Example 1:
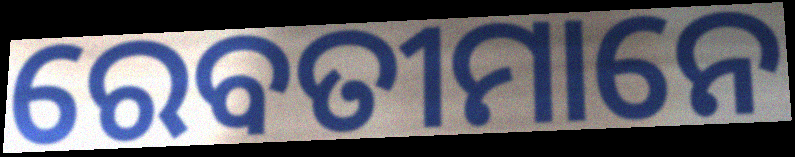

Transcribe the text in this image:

ରେବତୀମାନେ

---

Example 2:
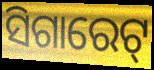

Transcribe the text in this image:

ସିଗାରେଟ୍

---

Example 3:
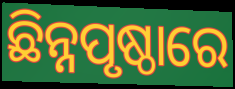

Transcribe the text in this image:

ଛିନ୍ନପୃଷ୍ଠାରେ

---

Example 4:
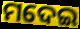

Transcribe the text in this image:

ମଦେଇ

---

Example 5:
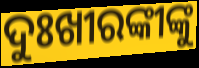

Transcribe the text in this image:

ଦୁଃଖୀରଙ୍କୀଙ୍କୁ